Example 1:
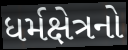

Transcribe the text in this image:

ધર્મક્ષેત્રનો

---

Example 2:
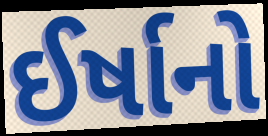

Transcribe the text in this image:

ઈર્ષાનો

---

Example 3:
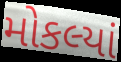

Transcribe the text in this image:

મોકલ્યાં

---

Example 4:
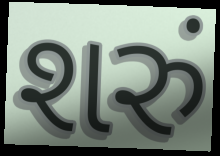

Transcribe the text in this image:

શરું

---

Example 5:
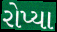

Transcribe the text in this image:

રોપ્યા